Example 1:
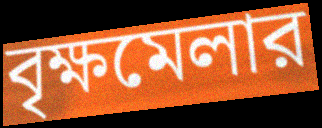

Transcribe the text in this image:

বৃক্ষমেলার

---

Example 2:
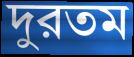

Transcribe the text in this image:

দুরতম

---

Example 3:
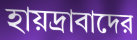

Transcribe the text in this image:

হায়দ্রাবাদের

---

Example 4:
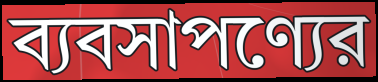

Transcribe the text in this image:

ব্যবসাপণ্যের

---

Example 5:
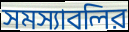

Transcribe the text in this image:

সমস্যাবলির